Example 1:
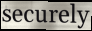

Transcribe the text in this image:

securely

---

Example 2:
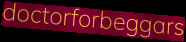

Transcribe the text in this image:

doctorforbeggars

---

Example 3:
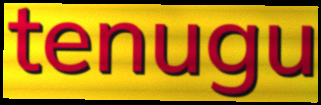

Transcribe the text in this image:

tenugu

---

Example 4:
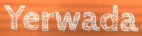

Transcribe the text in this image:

Yerwada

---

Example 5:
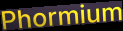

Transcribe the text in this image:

Phormium